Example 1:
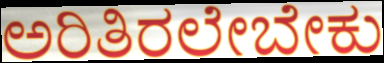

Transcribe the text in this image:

ಅರಿತಿರಲೇಬೇಕು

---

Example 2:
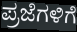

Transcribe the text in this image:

ಪ್ರಜೆಗಳಿಗೆ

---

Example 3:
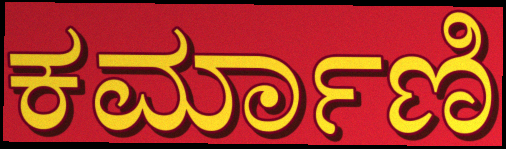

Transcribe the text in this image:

ಕರ್ಮಾಣಿ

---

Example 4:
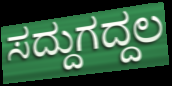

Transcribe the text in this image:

ಸದ್ದುಗದ್ದಲ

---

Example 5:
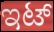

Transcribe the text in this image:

ಇಟ್